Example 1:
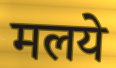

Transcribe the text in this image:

मलये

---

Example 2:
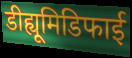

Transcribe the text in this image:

डीह्यूमिडिफाई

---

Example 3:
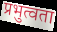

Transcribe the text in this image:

प्रभुत्वता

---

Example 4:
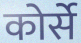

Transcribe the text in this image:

कोर्से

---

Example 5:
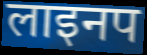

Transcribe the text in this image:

लाइनप